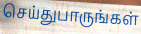
செய்துபாருங்கள்